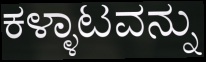
ಕಳ್ಳಾಟವನ್ನು